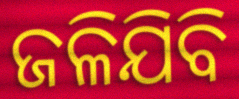
ଜଳିଯିବି